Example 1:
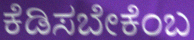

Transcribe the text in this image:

ಕೆಡಿಸಬೇಕೆಂಬ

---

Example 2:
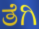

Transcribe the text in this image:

ತೆಗಿ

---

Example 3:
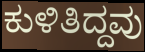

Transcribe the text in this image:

ಕುಳಿತಿದ್ದವು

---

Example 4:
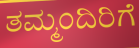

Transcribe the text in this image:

ತಮ್ಮಂದಿರಿಗೆ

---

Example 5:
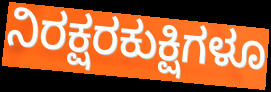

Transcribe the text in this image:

ನಿರಕ್ಷರಕುಕ್ಷಿಗಳೂ